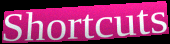
Shortcuts